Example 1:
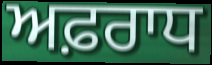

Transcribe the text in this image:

ਅਫ਼ਰਾਧ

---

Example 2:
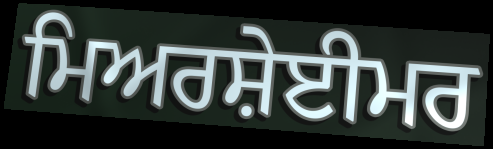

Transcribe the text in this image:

ਮਿਅਰਸ਼ੇਈਮਰ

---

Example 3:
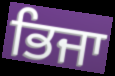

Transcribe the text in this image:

ਭਿਜਾ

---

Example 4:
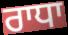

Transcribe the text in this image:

ਰਾਧਾ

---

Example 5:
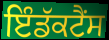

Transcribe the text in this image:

ਇੰਡੱਕਟੈਂਸ